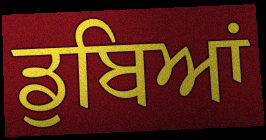
ਡੁਬਿਆਂ